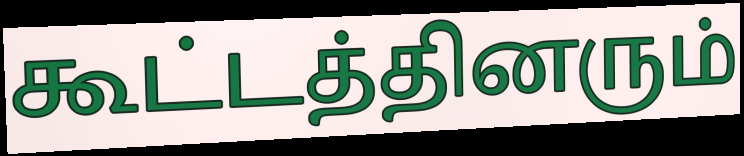
கூட்டத்தினரும்